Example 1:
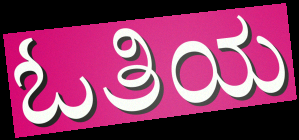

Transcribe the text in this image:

ಓತಿಯ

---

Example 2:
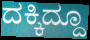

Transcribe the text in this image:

ದಕ್ಕಿದ್ದೂ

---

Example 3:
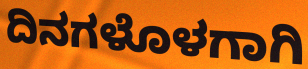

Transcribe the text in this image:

ದಿನಗಳೊಳಗಾಗಿ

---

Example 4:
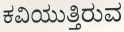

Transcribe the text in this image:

ಕವಿಯುತ್ತಿರುವ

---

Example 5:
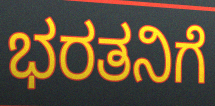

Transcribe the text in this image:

ಭರತನಿಗೆ